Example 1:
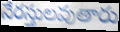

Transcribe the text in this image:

నేరస్తులవుతారు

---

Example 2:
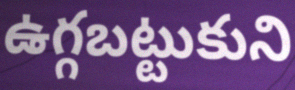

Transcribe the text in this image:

ఉగ్గబట్టుకుని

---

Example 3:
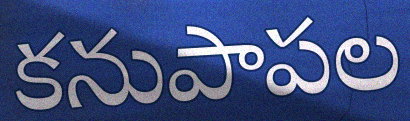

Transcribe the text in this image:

కనుపాపల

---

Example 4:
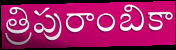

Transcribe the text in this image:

త్రిపురాంబికా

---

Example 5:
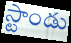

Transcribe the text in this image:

స్టాండు